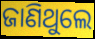
ଜାଣିଥୁଲେ